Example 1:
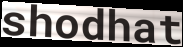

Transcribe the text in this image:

shodhat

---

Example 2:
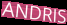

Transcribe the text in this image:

ANDRIS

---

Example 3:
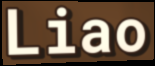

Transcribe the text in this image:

Liao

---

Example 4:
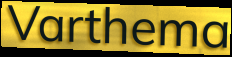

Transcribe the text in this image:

Varthema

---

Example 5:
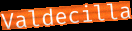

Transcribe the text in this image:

Valdecilla